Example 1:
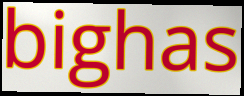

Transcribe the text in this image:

bighas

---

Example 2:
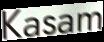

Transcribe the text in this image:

Kasam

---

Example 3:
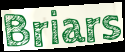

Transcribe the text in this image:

Briars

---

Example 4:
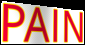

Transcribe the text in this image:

PAIN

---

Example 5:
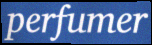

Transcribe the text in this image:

perfumer